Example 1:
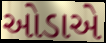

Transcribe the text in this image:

ઓડાએ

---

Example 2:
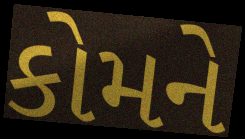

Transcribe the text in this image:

કોમને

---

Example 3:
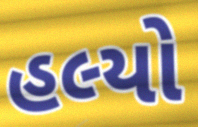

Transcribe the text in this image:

હલ્યો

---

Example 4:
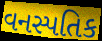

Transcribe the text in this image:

વનસ્પતિક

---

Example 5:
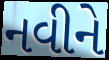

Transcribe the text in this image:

નવીને